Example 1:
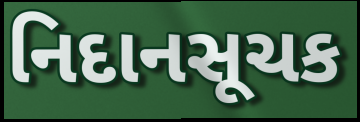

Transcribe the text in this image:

નિદાનસૂચક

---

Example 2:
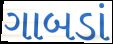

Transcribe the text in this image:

ગાબડાં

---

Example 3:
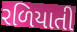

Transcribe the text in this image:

રળિયાતી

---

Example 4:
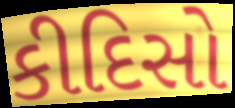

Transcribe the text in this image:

કીદિસો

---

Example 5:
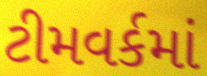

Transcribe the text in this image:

ટીમવર્કમાં